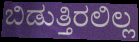
ಬಿಡುತ್ತಿರಲಿಲ್ಲ